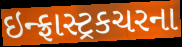
ઇન્ફ્રાસ્ટ્રકચરના